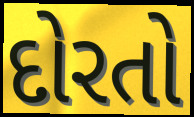
દોરતો